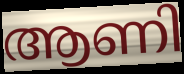
ആണി